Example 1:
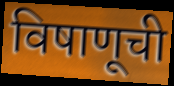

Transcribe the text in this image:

विषाणूची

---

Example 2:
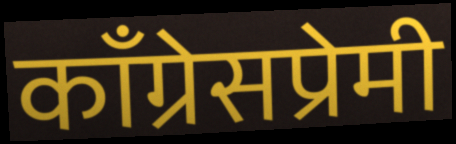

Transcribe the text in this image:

काँग्रेसप्रेमी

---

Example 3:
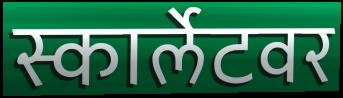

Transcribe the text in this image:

स्कार्लेटवर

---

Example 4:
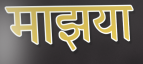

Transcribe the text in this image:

माझया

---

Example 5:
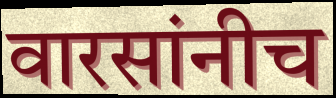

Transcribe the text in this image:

वारसांनीच